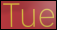
Tue